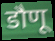
डौणू